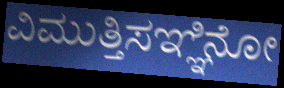
ವಿಮುತ್ತಿಸಞ್ಞಿನೋ